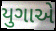
યુગાએ